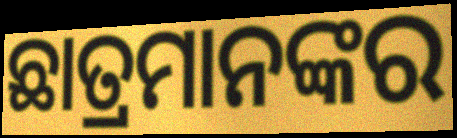
ଛାତ୍ରମାନଙ୍କର